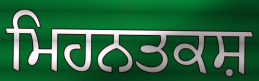
ਮਿਹਨਤਕਸ਼